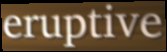
eruptive